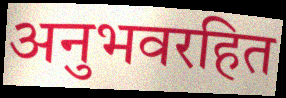
अनुभवरहित